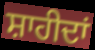
ਸ਼ਾਹੀਦਾਂ